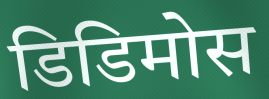
डिडिमोस